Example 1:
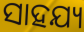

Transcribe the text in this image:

ସାହଯ୍ୟ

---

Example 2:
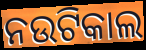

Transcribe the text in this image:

ନଉଟିକାଲ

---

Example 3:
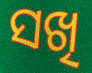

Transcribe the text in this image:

ସଖି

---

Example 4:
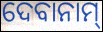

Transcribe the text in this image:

ଦେବାନାମ୍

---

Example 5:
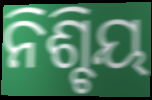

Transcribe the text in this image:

ନିଶ୍ଚିୟ